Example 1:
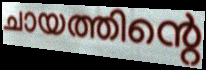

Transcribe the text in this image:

ചായത്തിന്റെ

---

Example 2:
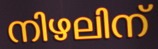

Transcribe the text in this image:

നിഴലിന്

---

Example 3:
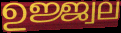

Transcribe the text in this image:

ഉജ്ജ്വല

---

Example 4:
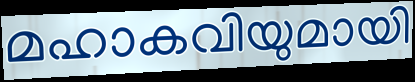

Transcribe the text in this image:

മഹാകവിയുമായി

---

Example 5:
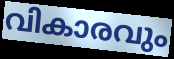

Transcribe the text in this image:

വികാരവും